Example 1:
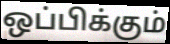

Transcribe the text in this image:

ஒப்பிக்கும்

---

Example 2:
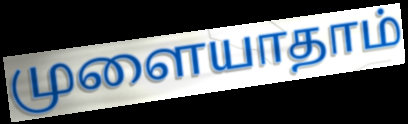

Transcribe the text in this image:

முளையாதாம்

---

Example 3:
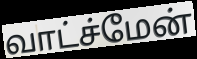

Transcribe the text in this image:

வாட்ச்மேன்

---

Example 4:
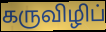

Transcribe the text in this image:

கருவிழிப்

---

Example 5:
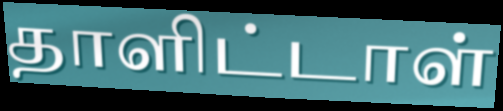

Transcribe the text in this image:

தாளிட்டாள்